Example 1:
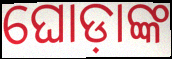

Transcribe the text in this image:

ଘୋଡ଼ାଙ୍କ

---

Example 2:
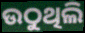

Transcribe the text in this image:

ଉଠୁଥିଲି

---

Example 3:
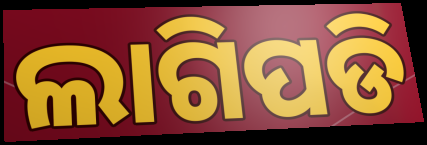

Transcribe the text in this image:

ଲାଗିପଡି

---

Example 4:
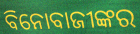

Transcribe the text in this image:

ବିନୋବାଜୀଙ୍କର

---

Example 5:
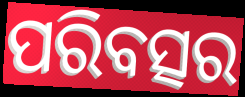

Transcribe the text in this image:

ପରିବତ୍ସର